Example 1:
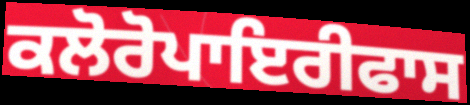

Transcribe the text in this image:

ਕਲੋਰੋਪਾਇਰੀਫਾਸ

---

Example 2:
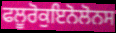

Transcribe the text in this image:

ਫਲੂਰੋਕੁਇਨੋਲੋਨਸ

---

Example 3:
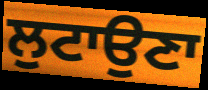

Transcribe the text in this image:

ਲੁਟਾਉਣਾ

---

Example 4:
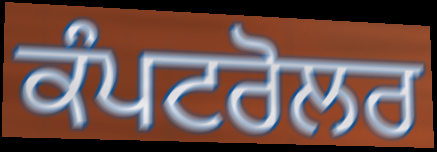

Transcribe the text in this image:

ਕੰਪਟਰੋਲਰ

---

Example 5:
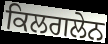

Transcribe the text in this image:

ਕਿਲਗਲੇਨ